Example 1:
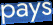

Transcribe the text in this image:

pays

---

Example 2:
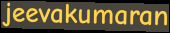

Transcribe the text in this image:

jeevakumaran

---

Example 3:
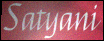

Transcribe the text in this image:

Satyani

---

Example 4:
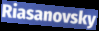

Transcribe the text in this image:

Riasanovsky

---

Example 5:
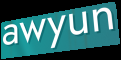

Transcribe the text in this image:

awyun